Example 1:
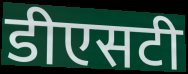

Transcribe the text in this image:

डीएसटी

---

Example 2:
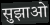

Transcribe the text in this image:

सुझाओ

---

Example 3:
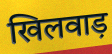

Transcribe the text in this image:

खिलवाड़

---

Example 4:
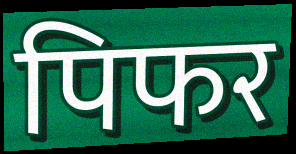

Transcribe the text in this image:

पिफर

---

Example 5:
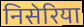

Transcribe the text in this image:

निसेरिया